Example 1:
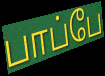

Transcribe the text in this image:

பாப்பே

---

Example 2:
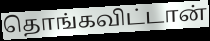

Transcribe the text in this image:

தொங்கவிட்டான்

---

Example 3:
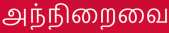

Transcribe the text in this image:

அந்நிறைவை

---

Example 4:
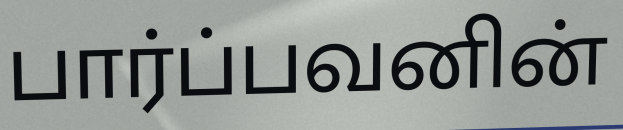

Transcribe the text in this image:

பார்ப்பவனின்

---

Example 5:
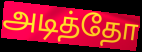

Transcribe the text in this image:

அடித்தோ